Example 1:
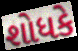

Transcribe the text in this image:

શોધકે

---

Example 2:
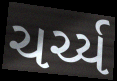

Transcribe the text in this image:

ચર્ચ્ય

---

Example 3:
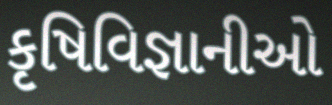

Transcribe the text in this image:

કૃષિવિજ્ઞાનીઓ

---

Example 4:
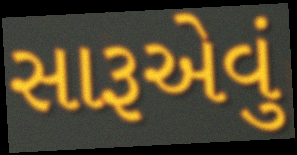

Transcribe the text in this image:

સારૂએવું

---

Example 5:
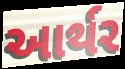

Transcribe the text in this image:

આર્થર